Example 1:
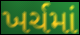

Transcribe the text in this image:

ખર્ચમાં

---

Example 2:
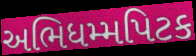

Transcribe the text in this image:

અભિધમ્મપિટક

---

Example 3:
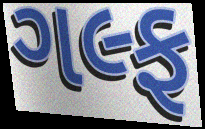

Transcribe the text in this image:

ગલ્ફ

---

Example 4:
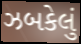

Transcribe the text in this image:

ઝબકેલું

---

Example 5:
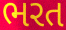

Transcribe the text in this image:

ભરત